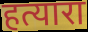
हत्यारा